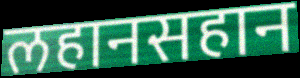
लहानसहान